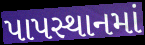
પાપસ્થાનમાં